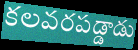
కలవరపడ్డాడు